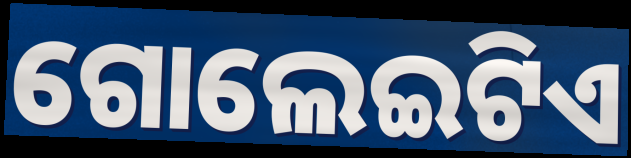
ଗୋଲେଇଟିଏ